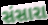
સંસારા